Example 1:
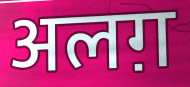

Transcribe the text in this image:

अलग़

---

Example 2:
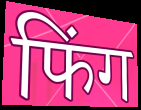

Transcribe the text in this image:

फिंग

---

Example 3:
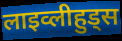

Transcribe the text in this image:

लाइव्लीहुड्स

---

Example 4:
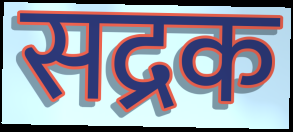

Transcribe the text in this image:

सद्रक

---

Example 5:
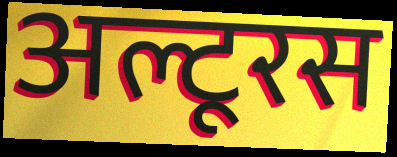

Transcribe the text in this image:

अल्टूरस